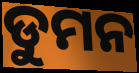
ଡୁମନ